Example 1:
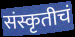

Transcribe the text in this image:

संस्कृतीचं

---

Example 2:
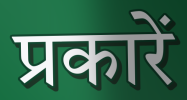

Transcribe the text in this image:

प्रकारें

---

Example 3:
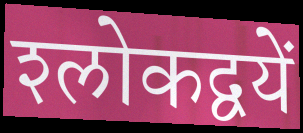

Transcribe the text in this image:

श्लोकद्वयें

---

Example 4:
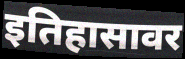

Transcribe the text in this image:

इतिहासावर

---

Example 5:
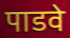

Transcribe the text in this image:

पाडवे